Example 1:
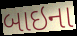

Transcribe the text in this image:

બાઇના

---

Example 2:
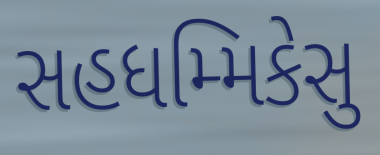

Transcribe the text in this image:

સહધમ્મિકેસુ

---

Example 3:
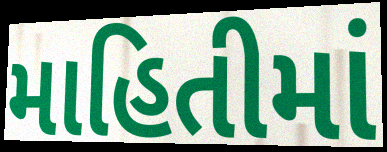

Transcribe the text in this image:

માહિતીમાં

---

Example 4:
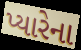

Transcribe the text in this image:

પ્યારેના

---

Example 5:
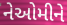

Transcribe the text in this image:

નેઓમીને